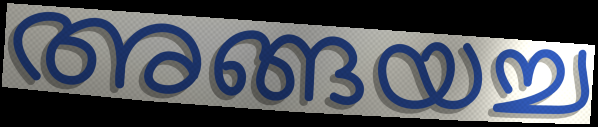
അങ്ങയച്ച